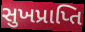
સુખપ્રાપ્તિ